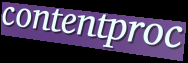
contentproc